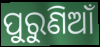
ପୁରୁଣିଆଁ